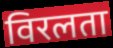
विरलता